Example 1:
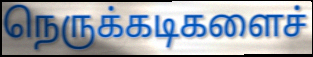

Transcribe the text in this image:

நெருக்கடிகளைச்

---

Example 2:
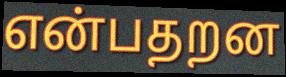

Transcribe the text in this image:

என்பதறன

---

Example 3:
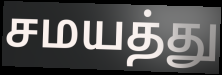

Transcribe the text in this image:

சமயத்து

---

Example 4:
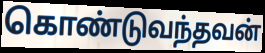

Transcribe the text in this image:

கொண்டுவந்தவன்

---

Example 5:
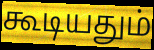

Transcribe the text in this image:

கூடியதும்